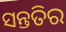
ସନ୍ତତିର